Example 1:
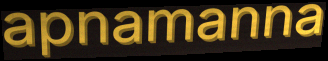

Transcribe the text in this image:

apnamanna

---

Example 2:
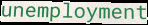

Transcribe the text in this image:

unemployment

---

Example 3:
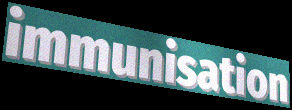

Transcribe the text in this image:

immunisation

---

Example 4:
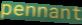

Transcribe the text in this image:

pennant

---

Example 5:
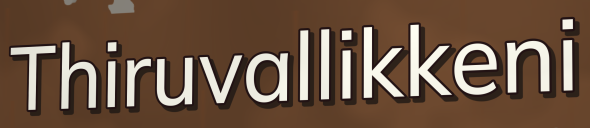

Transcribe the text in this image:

Thiruvallikkeni